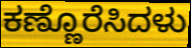
ಕಣ್ಣೊರೆಸಿದಳು